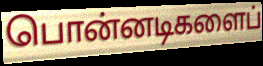
பொன்னடிகளைப்